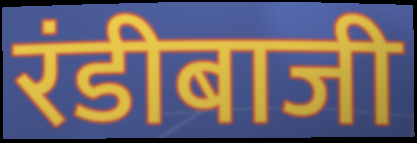
रंडीबाजी